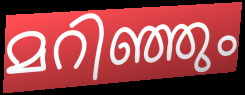
മറിഞ്ഞും